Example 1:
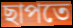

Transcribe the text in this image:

ছাপতে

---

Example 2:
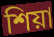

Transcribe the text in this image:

শিয়া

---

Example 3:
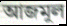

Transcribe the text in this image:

আজমুল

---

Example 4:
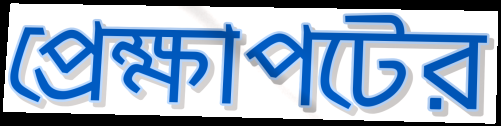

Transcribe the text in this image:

প্রেক্ষাপটের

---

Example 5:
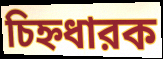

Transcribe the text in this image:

চিহ্নধারক